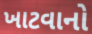
ખાટવાનો